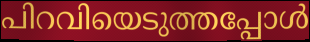
പിറവിയെടുത്തപ്പോൾ